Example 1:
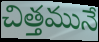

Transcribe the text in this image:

చిత్తమునే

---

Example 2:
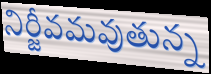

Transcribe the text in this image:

నిర్జీవమవుతున్న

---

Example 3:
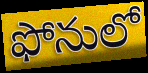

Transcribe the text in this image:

ఫోనులో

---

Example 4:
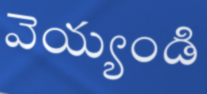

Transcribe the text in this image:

వెయ్యండి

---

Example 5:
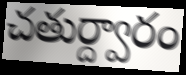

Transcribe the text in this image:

చతుర్ద్వారం